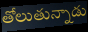
తోలుతున్నాడు